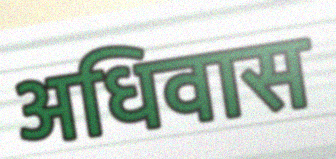
अधिवास